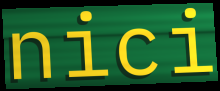
nici